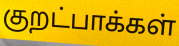
குறட்பாக்கள்